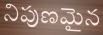
నిపుణమైన